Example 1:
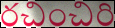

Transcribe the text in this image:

రచించిరి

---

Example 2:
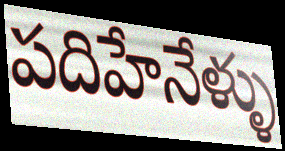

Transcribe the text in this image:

పదిహేనేళ్ళు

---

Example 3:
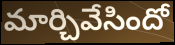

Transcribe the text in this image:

మార్చివేసిందో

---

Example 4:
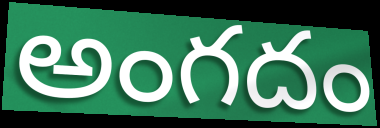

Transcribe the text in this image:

అంగదం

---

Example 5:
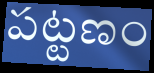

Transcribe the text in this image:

పట్టణం